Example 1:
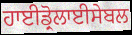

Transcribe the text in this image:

ਹਾਈਡ੍ਰੋਲਾਈਸੇਬਲ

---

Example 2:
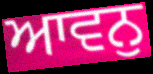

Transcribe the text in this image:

ਆਵਨੁ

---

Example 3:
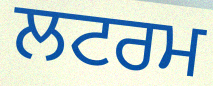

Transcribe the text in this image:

ਲਟਰਮ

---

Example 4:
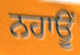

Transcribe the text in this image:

ਨਹਾਊਂ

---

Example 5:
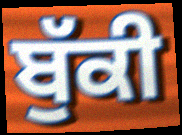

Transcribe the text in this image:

ਬੁੱਕੀ